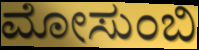
ಮೋಸುಂಬಿ